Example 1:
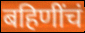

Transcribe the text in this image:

बहिणींचं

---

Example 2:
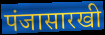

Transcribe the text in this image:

पंजासारखी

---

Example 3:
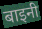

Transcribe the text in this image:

बाइनी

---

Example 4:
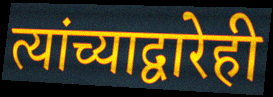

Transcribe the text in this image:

त्यांच्याद्वारेही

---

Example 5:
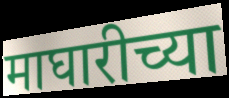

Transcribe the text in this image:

माघारीच्या